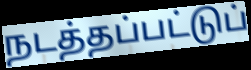
நடத்தப்பட்டுப்